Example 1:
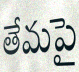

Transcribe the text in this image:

తేమపై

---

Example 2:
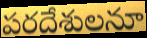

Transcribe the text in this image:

పరదేశులనూ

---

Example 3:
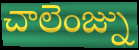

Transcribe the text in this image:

చాలెంజ్ను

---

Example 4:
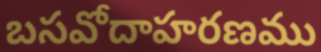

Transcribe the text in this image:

బసవోదాహరణము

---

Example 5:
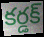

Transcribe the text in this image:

కర్డక్